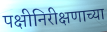
पक्षीनिरीक्षणाच्या